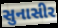
સુનાસીર